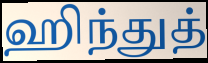
ஹிந்துத்